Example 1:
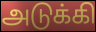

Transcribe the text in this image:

அடுக்கி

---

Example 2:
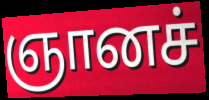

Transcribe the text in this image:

ஞானச்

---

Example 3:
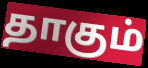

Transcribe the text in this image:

தாகும்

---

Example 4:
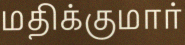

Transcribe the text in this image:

மதிக்குமார்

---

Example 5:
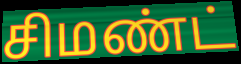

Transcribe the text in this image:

சிமண்ட்